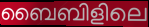
ബൈബിളിലെ